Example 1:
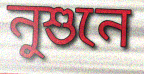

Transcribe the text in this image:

নুশুনে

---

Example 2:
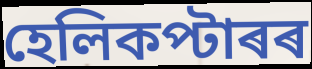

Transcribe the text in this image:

হেলিকপ্টাৰৰ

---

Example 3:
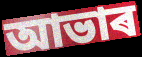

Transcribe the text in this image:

আভাৰ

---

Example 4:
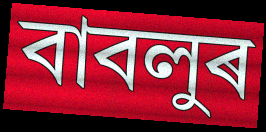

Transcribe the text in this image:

বাবলুৰ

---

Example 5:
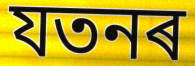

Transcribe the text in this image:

যতনৰ